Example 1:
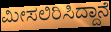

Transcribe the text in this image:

ಮೀಸಲಿರಿಸಿದ್ದಾನೆ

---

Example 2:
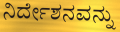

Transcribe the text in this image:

ನಿರ್ದೇಶನವನ್ನು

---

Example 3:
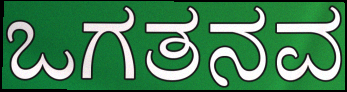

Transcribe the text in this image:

ಒಗತನವ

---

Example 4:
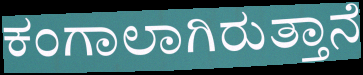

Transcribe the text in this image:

ಕಂಗಾಲಾಗಿರುತ್ತಾನೆ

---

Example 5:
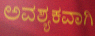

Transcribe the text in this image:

ಅವಶ್ಯಕವಾಗಿ